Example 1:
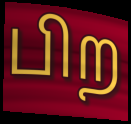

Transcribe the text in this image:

பிற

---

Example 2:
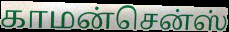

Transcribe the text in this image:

காமன்சென்ஸ்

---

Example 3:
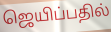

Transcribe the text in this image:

ஜெயிப்பதில்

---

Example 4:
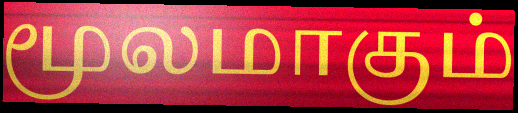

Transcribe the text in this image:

மூலமாகும்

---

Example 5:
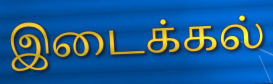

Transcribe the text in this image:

இடைக்கல்